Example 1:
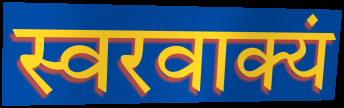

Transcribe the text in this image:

स्वरवाक्यं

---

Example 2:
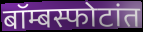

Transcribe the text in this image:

बॉम्बस्फोटांत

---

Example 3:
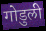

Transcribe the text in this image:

गोडुली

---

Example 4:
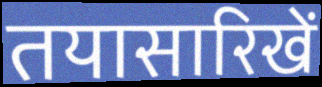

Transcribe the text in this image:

तयासारिखें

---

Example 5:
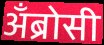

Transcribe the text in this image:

अँब्रोसी